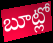
బూట్లో